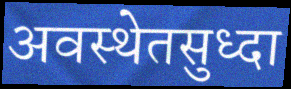
अवस्थेतसुध्दा